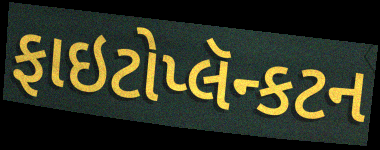
ફાઇટોપ્લૅન્કટન